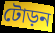
টোড়ন